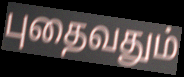
புதைவதும்